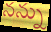
నన్ను